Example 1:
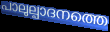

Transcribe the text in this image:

പാലുല്പാദനത്തെ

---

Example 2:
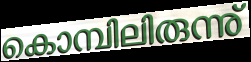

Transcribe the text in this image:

കൊമ്പിലിരുന്നു്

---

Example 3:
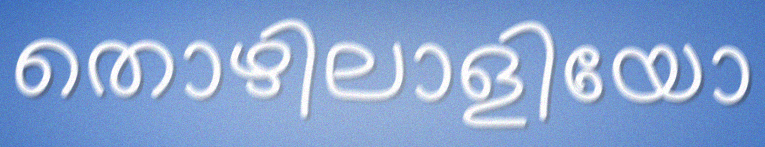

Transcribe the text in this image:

തൊഴിലാളിയോ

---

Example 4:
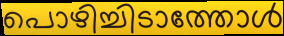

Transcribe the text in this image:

പൊഴിച്ചിടാത്തോൾ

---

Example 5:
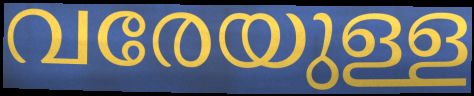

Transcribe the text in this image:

വരേയുള്ള